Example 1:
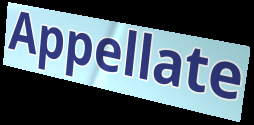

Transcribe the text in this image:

Appellate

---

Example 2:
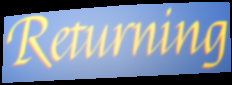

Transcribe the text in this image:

Returning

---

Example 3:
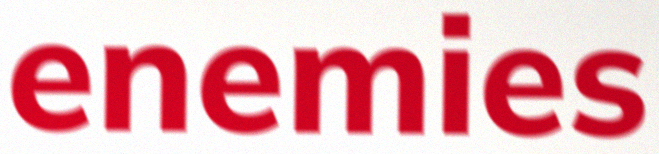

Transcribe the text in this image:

enemies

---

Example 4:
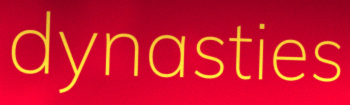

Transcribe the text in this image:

dynasties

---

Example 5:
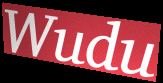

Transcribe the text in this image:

Wudu